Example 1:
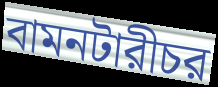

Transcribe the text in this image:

বামনটারীচর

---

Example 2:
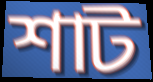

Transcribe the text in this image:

শাট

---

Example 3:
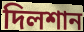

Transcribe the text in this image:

দিলশান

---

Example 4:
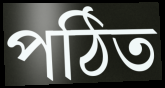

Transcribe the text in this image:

পঠিত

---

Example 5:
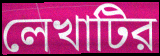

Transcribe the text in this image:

লেখাটির